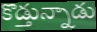
కొడ్తున్నాడు